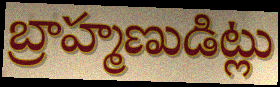
బ్రాహ్మణుడిట్లు